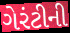
ગેરંટીની